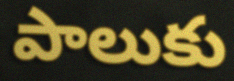
పాలుకు